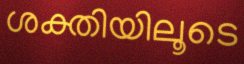
ശക്തിയിലൂടെ